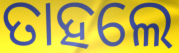
ତାହଲେ